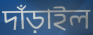
দাঁড়াইল